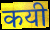
कयी